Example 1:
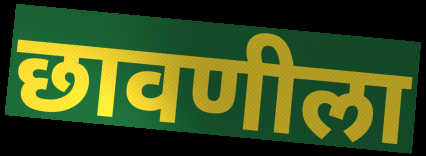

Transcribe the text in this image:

छावणीला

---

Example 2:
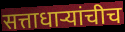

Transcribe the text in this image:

सत्ताधाऱ्यांचीच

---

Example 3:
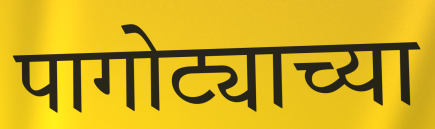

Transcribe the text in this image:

पागोट्याच्या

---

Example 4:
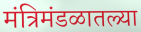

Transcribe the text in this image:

मंत्रिमंडळातल्या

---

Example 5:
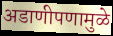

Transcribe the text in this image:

अडाणीपणामुळे